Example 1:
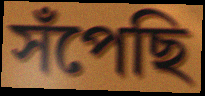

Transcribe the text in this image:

সঁপেছি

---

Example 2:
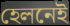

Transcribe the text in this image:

হেলনেই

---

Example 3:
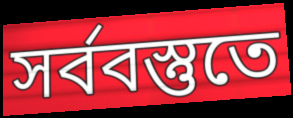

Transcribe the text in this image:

সর্ববস্তুতে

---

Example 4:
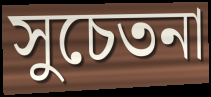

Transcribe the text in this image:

সুচেতনা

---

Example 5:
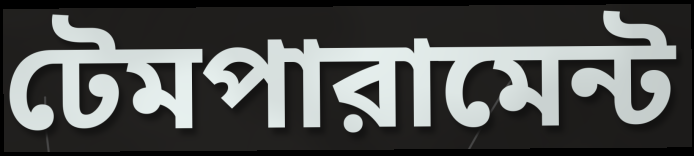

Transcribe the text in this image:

টেমপারামেন্ট